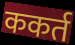
ककर्त